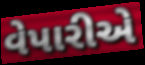
વેપારીએ